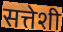
सत्तेशी